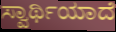
ಸ್ವಾರ್ಥಿಯಾದೆ